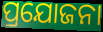
ପ୍ରଯୋଜନା